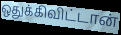
ஒதுக்கிவிட்டான்